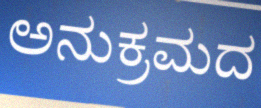
ಅನುಕ್ರಮದ